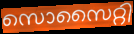
സൊസൈറ്റി